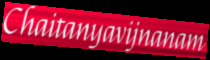
Chaitanyavijnanam